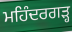
ਮਹਿੰਦਰਗੜ੍ਹ